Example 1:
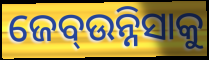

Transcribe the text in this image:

ଜେବ୍ଉନ୍ନିସାକୁ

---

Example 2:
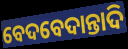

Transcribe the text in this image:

ବେଦବେଦାନ୍ତାଦି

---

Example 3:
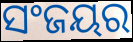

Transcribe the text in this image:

ସଂଜୟର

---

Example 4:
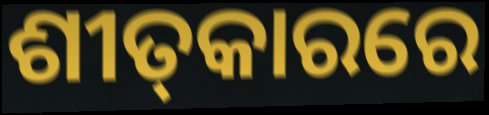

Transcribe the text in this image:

ଶୀତ୍‌କାରରେ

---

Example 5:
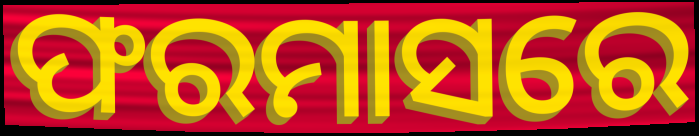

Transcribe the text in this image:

ଫରମାସରେ